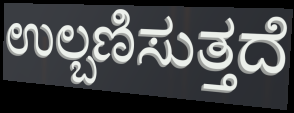
ಉಲ್ಬಣಿಸುತ್ತದೆ